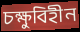
চক্ষুবিহীন